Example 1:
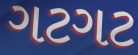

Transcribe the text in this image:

ગટગટ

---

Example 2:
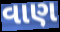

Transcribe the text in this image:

વાણ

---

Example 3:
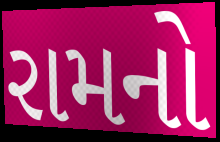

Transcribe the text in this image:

રામનો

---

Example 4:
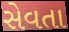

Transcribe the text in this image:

સેવતા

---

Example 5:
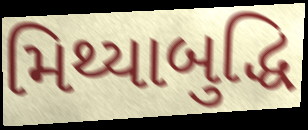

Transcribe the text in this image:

મિથ્યાબુદ્ધિ